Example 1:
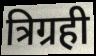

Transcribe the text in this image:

त्रिग्रही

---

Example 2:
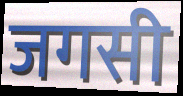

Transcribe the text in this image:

जगसी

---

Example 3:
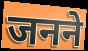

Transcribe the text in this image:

जनने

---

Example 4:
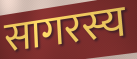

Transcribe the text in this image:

सागरस्य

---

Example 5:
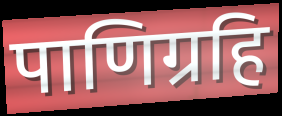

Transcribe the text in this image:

पाणिग्रहि